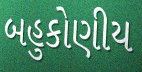
બહુકોણીય